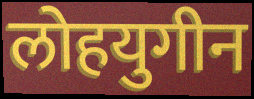
लोहयुगीन